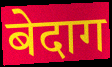
बेदाग